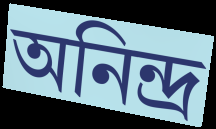
অনিন্দ্র